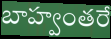
బాహ్వంతరే